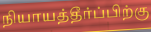
நியாயத்தீர்ப்பிற்கு